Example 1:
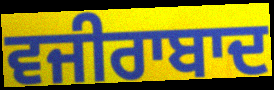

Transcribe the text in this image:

ਵਜੀਰਾਬਾਦ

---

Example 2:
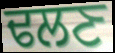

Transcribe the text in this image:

ਢਲਣ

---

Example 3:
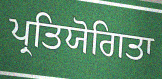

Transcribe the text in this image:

ਪ੍ਰਤਿਯੋਗਿਤਾ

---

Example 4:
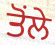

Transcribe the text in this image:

ਤੋਂਲੇ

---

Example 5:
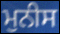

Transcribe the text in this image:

ਮੁਨੀਸ